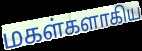
மகள்களாகிய